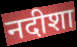
नदीशा